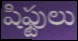
షిఫ్టులు